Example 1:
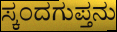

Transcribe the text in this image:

ಸ್ಕಂದಗುಪ್ತನು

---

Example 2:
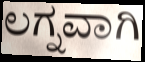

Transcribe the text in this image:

ಲಗ್ನವಾಗಿ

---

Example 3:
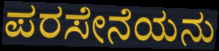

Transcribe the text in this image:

ಪರಸೇನೆಯನು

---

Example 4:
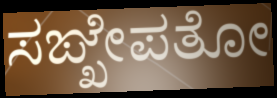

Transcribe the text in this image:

ಸಙ್ಖೇಪತೋ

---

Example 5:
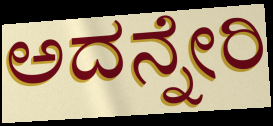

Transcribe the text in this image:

ಅದನ್ನೇರಿ